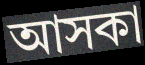
আসকা